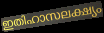
ഇതിഹാസലക്ഷ്യം